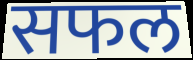
सफल